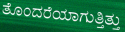
ತೊಂದರೆಯಾಗುತ್ತಿತ್ತು